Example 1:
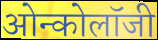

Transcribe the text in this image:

ओन्कोलॉजी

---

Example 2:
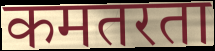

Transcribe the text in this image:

कमतरता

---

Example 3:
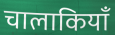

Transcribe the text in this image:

चालाकियाँ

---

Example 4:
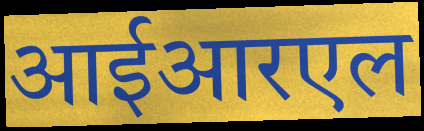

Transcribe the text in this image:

आईआरएल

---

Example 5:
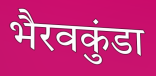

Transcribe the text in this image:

भैरवकुंडा